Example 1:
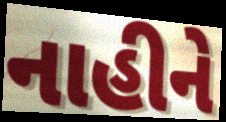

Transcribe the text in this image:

નાહીને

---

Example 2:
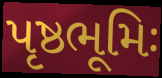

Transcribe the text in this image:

પૃષ્ઠભૂમિઃ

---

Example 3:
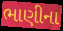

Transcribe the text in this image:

ભાણીના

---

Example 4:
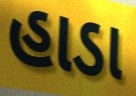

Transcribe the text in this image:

હાડા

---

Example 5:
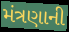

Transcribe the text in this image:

મંત્રણાની